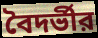
বৈদর্ভীর